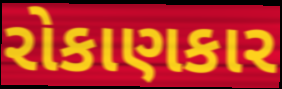
રોકાણકાર